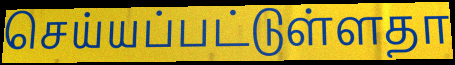
செய்யப்பட்டுள்ளதா